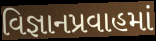
વિજ્ઞાનપ્રવાહમાં